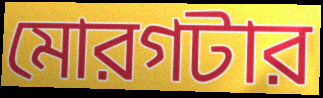
মোরগটার